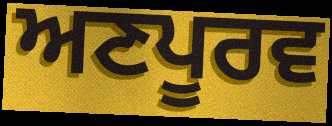
ਅਣਪੂਰਵ